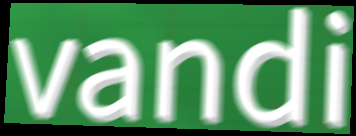
vandi